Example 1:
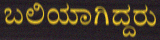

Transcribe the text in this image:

ಬಲಿಯಾಗಿದ್ದರು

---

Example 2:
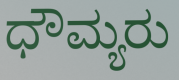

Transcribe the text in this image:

ಧೌಮ್ಯರು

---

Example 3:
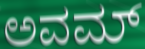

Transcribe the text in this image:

ಅವಮ್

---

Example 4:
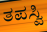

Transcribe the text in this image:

ತಪಸ್ವಿ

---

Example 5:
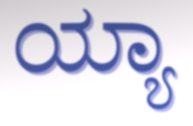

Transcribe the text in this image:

ಯ್ಯಾ